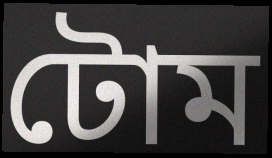
টোম